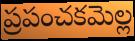
ప్రపంచకమెల్ల